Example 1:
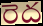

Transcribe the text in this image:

రెద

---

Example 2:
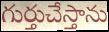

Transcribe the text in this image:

గుర్తుచేస్తాను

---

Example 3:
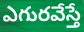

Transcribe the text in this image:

ఎగురవేస్తే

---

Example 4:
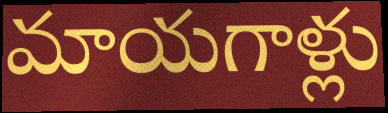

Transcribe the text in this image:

మాయగాళ్లు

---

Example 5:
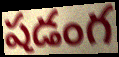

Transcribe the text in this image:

షడంగ